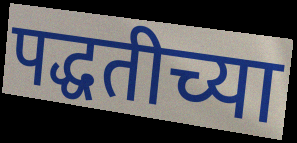
पद्धतीच्या